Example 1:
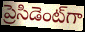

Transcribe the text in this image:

ప్రెసిడెంట్‌గా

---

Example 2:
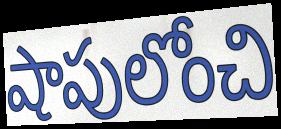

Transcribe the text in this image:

షాపులోంచి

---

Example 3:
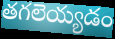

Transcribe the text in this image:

తగలెయ్యడం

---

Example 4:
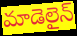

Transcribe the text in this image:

మాడెలైన్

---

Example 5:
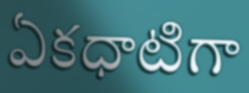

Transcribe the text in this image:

ఏకధాటిగా